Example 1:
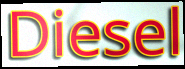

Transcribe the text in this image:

Diesel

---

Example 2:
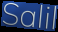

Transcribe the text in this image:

Salil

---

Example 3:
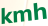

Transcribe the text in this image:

kmh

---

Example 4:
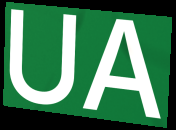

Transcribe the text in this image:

UA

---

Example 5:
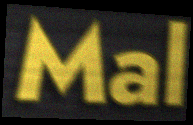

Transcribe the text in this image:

Mal